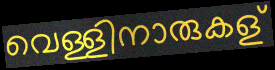
വെള്ളിനാരുകള്